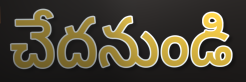
చేదనుండి